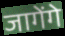
जागेंगे